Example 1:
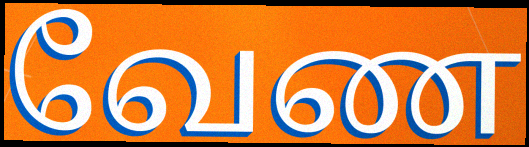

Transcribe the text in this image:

வேண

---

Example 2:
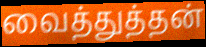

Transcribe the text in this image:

வைத்துத்தன்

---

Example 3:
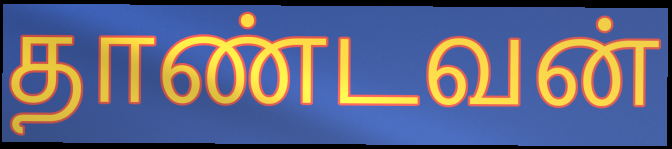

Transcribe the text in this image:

தாண்டவன்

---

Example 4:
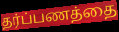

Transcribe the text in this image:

தர்ப்பணத்தை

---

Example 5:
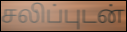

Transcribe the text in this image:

சலிப்புடன்